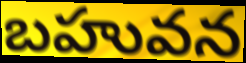
బహువన